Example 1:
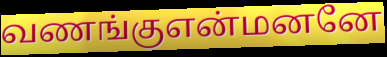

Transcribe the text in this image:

வணங்குஎன்மனனே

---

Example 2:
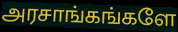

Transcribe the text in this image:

அரசாங்கங்களே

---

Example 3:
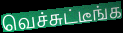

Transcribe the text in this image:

வெச்சுட்டீங்க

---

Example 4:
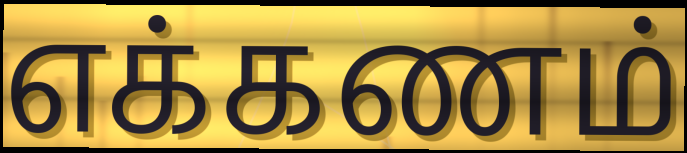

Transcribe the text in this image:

எக்கணம்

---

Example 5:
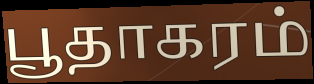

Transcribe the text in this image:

பூதாகரம்